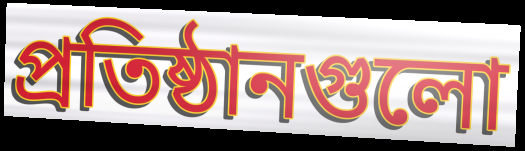
প্রতিষ্ঠানগুলো